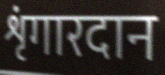
शृंगारदान